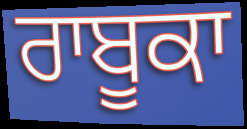
ਰਾਬੂਕਾ